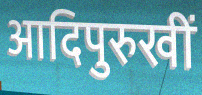
आदिपुरुखीं